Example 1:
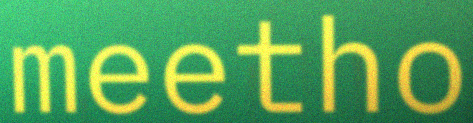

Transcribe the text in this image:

meetho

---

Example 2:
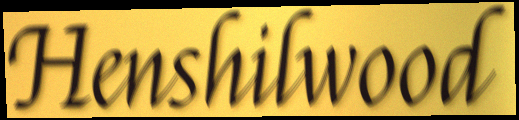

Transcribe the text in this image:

Henshilwood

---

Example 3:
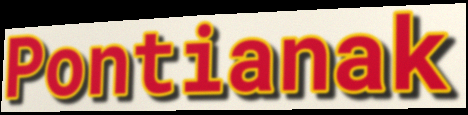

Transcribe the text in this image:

Pontianak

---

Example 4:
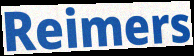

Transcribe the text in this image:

Reimers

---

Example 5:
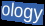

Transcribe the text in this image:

ology